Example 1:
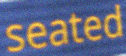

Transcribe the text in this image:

seated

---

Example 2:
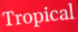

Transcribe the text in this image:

Tropical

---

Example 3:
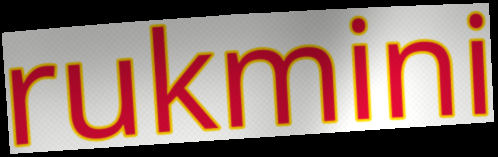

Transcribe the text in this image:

rukmini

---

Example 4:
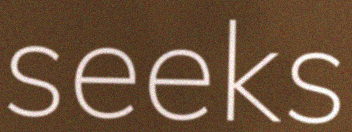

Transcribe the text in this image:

seeks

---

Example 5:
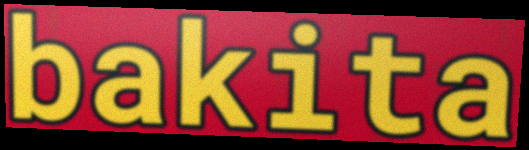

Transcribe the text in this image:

bakita